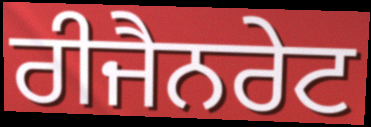
ਰੀਜੈਨਰੇਟ